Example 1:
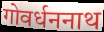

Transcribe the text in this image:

गोवर्धननाथ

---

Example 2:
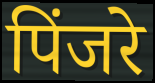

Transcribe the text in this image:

पिंजरे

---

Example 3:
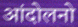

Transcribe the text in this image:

आंदोलनो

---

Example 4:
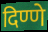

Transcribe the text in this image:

दिण्णे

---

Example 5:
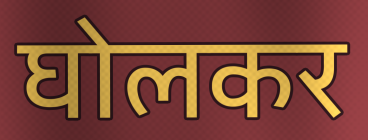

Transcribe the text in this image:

घोलकर